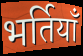
भर्तियाँ